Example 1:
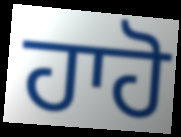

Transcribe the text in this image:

ਹਾਹੋ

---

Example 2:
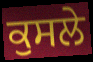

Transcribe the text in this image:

ਕੁਸਲੇ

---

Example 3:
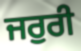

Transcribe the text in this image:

ਜਰੁਰੀ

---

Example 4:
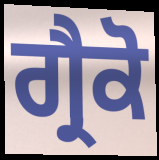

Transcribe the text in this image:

ਗ੍ਰੈਕੋ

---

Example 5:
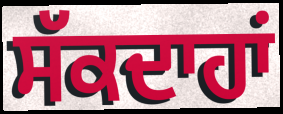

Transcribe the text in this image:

ਸੱਕਦਾਹਾਂ